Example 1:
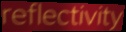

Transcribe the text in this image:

reflectivity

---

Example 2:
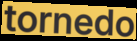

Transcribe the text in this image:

tornedo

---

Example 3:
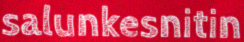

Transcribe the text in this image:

salunkesnitin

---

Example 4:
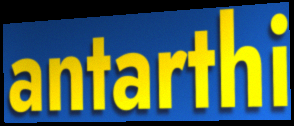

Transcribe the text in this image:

antarthi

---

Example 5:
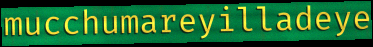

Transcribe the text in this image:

mucchumareyilladeye